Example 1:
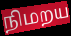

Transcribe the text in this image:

நிமறய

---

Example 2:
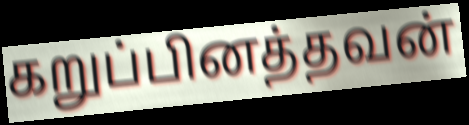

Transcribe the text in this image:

கறுப்பினத்தவன்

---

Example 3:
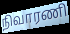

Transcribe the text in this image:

நிவாரணி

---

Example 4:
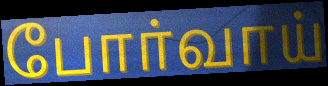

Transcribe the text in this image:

போர்வாய்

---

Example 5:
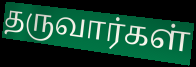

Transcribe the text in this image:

தருவார்கள்